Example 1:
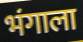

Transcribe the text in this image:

भंगाला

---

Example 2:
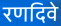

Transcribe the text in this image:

रणदिवे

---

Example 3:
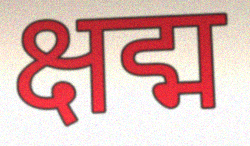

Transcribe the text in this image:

क्षद्म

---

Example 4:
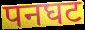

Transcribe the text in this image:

पनघट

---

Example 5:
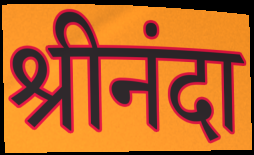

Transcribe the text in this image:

श्रीनंदा